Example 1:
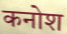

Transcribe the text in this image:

कनोश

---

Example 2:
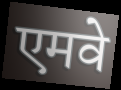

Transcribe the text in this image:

एमवे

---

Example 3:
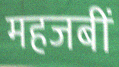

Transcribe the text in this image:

महजबीं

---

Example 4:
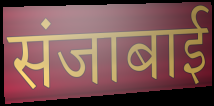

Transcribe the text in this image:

संजाबाई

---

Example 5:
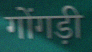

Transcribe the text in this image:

गोंगड़ी